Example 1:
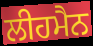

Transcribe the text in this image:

ਲੀਹਮੈਨ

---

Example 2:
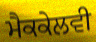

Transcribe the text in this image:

ਮੈਕਕੇਲਵੀ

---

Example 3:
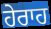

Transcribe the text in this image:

ਹੇਰਾਹ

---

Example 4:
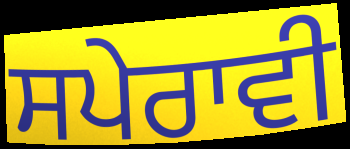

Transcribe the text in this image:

ਸਪੇਰਾਵੀ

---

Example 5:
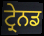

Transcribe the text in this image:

ਟ੍ਰੇਨਡ